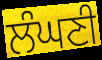
ਲੰਘਣੀ